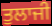
ਤੁਲਾਜੀ